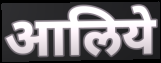
आलिये